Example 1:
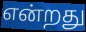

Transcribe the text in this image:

என்றது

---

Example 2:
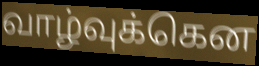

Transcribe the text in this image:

வாழ்வுக்கென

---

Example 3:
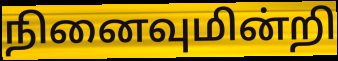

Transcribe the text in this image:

நினைவுமின்றி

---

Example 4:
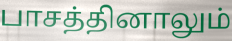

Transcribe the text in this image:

பாசத்தினாலும்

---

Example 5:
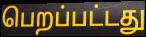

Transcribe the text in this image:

பெறப்பட்டது